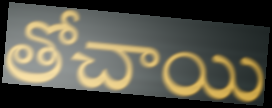
తోచాయి